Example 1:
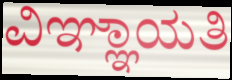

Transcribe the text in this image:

ವಿಞ್ಞಾಯತಿ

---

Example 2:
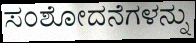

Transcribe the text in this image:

ಸಂಶೋದನೆಗಳನ್ನು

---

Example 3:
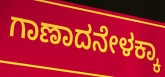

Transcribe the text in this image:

ಗಾಣಾದನೇಳಕ್ಕಾ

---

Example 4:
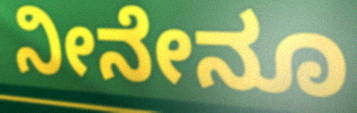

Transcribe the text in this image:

ನೀನೇನೂ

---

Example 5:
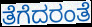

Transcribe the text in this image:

ತೆಗೆದರಂತೆ